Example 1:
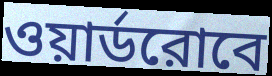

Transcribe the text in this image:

ওয়ার্ডরোবে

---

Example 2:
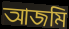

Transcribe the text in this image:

আজমি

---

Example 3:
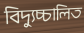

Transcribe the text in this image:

বিদ্যুচ্চালিত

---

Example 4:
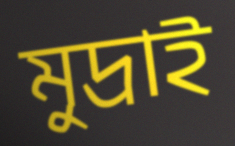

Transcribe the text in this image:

মুদ্রাই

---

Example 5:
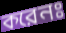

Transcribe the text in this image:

করেনঃ